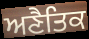
ਅਣੈਤਿਕ